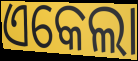
ଏକେଲା